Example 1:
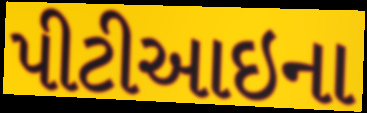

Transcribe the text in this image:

પીટીઆઇના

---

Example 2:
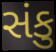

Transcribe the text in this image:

સંકુ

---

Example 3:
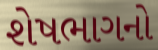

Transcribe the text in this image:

શેષભાગનો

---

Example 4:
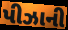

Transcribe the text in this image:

પીઝાની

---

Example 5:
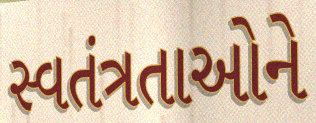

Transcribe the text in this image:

સ્વતંત્રતાઓને